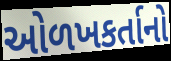
ઓળખકર્તાનો